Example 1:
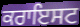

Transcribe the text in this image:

ਕਰਾਇਸਟ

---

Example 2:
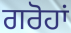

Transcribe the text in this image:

ਗਰੋਹਾਂ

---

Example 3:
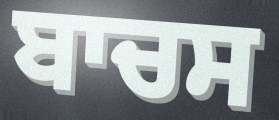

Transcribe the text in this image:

ਬਾਚਸ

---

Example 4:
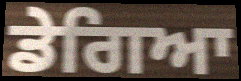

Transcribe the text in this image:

ਡੇਗਿਆ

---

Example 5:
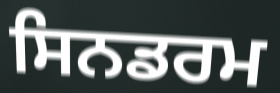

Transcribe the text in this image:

ਸਿਨਡਰਮ